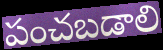
పంచబడాలి